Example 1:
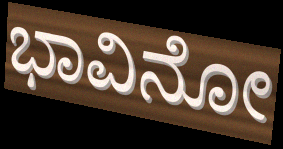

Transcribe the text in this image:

ಭಾವಿನೋ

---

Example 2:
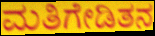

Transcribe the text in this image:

ಮತಿಗೇಡಿತನ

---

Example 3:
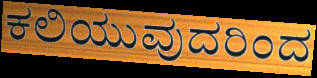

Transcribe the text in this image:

ಕಲಿಯುವುದರಿಂದ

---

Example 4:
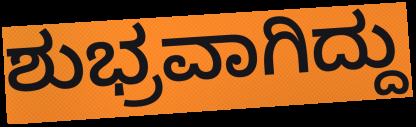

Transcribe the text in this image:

ಶುಭ್ರವಾಗಿದ್ದು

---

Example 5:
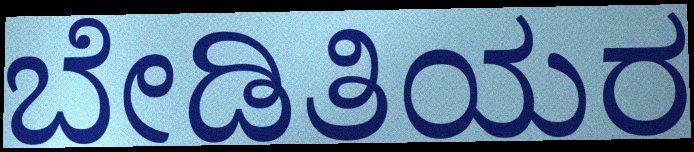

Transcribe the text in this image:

ಬೇಡಿತಿಯರ